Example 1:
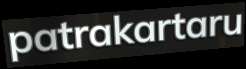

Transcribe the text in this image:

patrakartaru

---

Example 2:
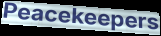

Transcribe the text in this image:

Peacekeepers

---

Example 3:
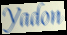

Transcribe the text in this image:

Yadon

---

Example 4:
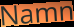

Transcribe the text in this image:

Namn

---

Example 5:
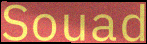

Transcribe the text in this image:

Souad